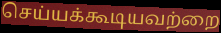
செய்யக்கூடியவற்றை